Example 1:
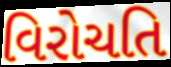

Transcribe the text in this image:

વિરોચતિ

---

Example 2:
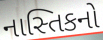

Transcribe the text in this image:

નાસ્તિકનો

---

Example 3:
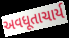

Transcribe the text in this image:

અવધૂતાચાર્ય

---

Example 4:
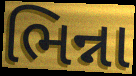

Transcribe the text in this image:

ભિન્ના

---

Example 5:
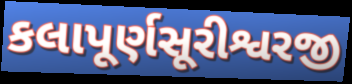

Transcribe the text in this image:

કલાપૂર્ણસૂરીશ્વરજી